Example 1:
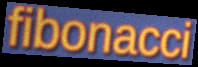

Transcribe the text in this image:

fibonacci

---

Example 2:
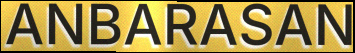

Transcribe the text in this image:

ANBARASAN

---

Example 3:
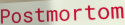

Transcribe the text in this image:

Postmortom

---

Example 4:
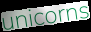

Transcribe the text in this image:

unicorns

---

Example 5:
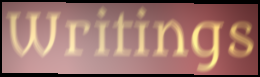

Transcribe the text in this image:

Writings